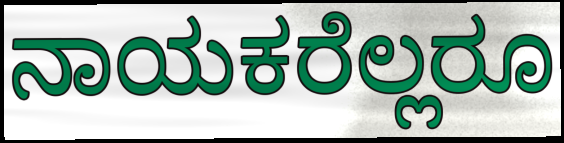
ನಾಯಕರೆಲ್ಲರೂ